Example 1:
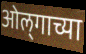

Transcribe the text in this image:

ओल्गाच्या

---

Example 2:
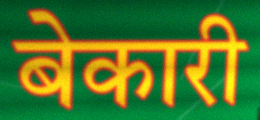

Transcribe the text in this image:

बेकारी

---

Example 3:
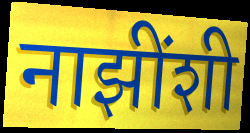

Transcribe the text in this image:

नाझींशी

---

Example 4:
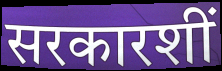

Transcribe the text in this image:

सरकारशीं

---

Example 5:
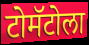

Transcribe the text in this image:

टोमॅटोला